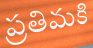
ప్రతిమకి